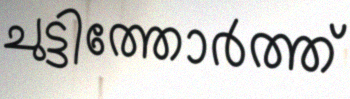
ചുട്ടിത്തോർത്ത്